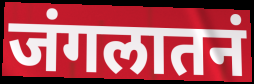
जंगलातनं